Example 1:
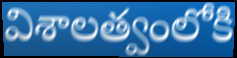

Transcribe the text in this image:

విశాలత్వంలోకి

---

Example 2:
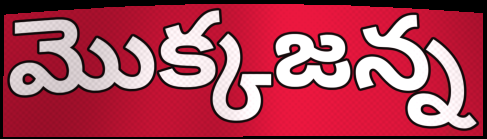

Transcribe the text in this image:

మొక్కజన్న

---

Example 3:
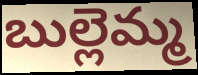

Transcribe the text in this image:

బుల్లెమ్మ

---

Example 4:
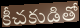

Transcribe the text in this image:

కీచకుడితో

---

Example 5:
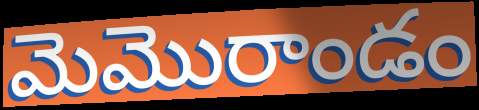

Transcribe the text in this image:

మెమొరాండం